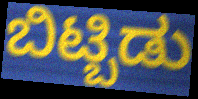
ಬಿಟ್ಬಿಡು